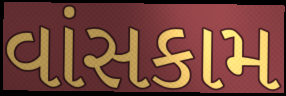
વાંસકામ